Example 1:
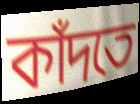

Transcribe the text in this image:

কাঁদতে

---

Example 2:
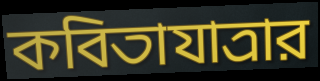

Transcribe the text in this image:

কবিতাযাত্রার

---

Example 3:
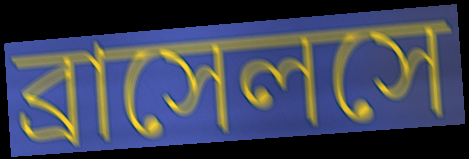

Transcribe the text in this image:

ব্রাসেলসে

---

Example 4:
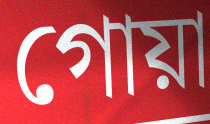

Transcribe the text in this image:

গোয়া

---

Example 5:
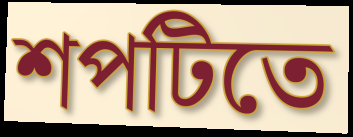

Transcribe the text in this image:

শপটিতে